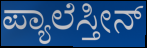
ಪ್ಯಾಲೆಸ್ತೀನ್